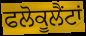
ਫਲੋਕੂਲੈਂਟਾਂ